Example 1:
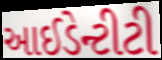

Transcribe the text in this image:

આઈડેન્ટીટી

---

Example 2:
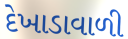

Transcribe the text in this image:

દેખાડાવાળી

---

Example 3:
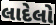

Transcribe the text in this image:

લાદેલો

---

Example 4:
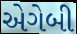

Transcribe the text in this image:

એગેબી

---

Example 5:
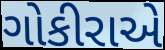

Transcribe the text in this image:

ગોકીરાએ